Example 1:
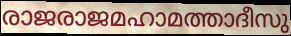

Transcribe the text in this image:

രാജരാജമഹാമത്താദീസു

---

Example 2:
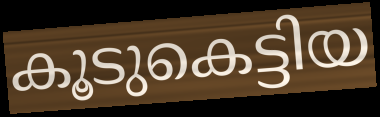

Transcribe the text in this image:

കൂടുകെട്ടിയ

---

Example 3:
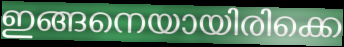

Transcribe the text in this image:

ഇങ്ങനെയായിരിക്കെ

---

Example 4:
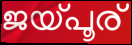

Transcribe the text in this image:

ജയ്പൂര്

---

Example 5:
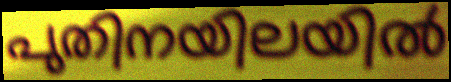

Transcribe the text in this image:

പുതിനയിലയിൽ